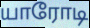
யாரோடி